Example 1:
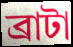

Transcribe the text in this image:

ব্রাটা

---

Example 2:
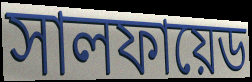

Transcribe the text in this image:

সালফায়েড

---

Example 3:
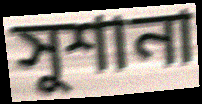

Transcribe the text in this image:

সুশানা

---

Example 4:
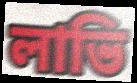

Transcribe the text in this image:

লাভি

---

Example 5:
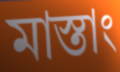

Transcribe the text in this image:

মাস্তাং